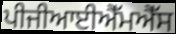
ਪੀਜੀਆਈਐੱਮਐੱਸ